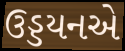
ઉડ્ડયનએ